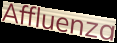
Affluenza